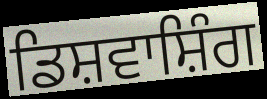
ਡਿਸ਼ਵਾਸ਼ਿੰਗ